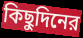
কিছুদিনের